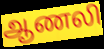
ஆணலி